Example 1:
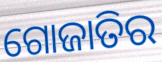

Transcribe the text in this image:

ଗୋଜାତିର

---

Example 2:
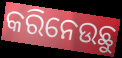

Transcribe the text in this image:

କରିନେଉଛୁ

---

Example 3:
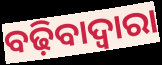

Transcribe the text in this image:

ବଢ଼ିବାଦ୍ୱାରା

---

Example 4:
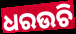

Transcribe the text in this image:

ଧରଉଚି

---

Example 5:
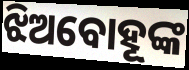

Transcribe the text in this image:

ଝିଅବୋହୂଙ୍କ